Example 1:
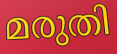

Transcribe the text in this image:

മരുതി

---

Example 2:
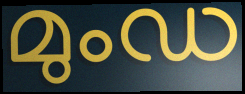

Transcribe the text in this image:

മുംഡ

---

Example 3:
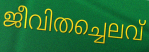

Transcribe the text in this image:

ജീവിതച്ചെലവ്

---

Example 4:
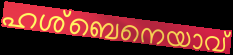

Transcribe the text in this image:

ഹശ്ബെനെയാവ്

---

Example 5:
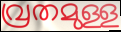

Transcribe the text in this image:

വ്രതമുള്ള